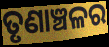
ତୃଣାଞ୍ଚଳର